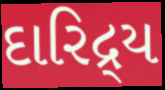
દારિદ્ર્ય